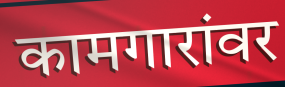
कामगारांवर